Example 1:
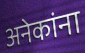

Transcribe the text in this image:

अनेकांना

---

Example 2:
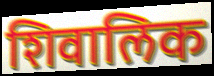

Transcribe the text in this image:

शिवालिक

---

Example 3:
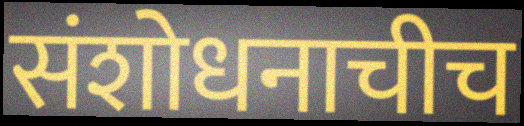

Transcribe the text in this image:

संशोधनाचीच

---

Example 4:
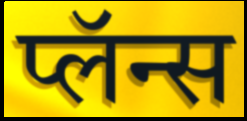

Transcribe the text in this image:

प्लॅन्स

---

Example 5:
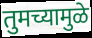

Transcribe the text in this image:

तुमच्यामुळे